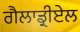
ਗੈਲਾਡ੍ਰੀਏਲ